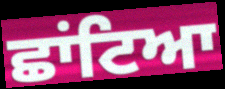
ਛਾਂਟਿਆ